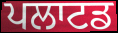
ਪਲਾਟਡ